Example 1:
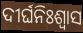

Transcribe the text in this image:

ଦୀର୍ଘନିଃଶ୍ବାସ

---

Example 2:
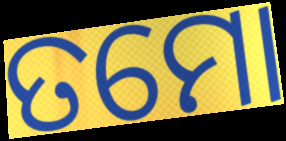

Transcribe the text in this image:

ତମୋ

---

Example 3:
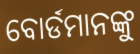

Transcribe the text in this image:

ବୋର୍ଡମାନଙ୍କୁ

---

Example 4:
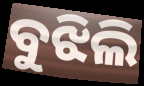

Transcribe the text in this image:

ବୁଝିଲି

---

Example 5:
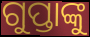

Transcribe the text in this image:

ଗୁପ୍ତାଙ୍କୁ